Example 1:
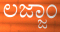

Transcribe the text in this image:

ಲಜ್ಜಾಂ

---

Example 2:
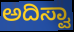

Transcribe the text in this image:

ಅದಿಸ್ವಾ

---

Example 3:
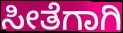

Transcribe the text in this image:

ಸೀತೆಗಾಗಿ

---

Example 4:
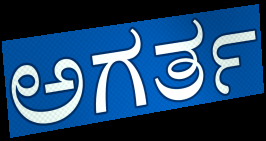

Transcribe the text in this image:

ಅಗರ್ತ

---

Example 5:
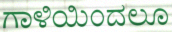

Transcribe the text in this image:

ಗಾಳಿಯಿಂದಲೂ